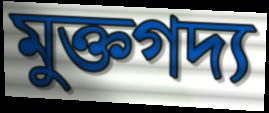
মুক্তগদ্য